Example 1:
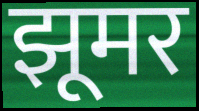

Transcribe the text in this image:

झूमर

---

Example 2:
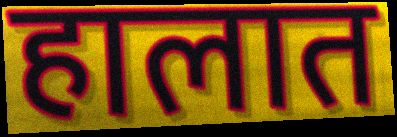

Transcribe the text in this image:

हालात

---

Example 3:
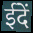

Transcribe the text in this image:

ईदें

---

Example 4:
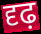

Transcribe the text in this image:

दृढ़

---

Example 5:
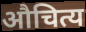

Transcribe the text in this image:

औचित्य